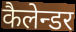
कैलेन्डर